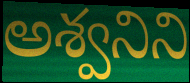
అశ్వనిని